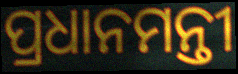
ପ୍ରଧାନମନ୍ତୀ